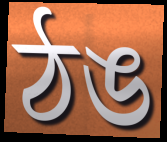
ঠঙ